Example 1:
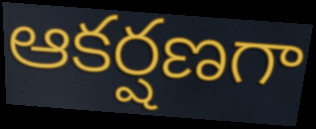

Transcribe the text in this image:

ఆకర్షణగా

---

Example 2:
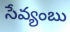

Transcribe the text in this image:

సేవ్యంబు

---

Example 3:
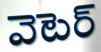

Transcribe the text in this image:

వెటెర్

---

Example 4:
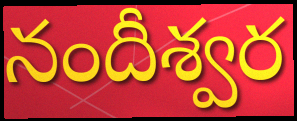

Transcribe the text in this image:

నందీశ్వర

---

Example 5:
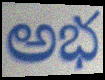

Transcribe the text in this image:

అభ